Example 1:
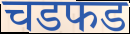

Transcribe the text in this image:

चडफड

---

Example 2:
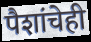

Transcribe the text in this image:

पैशांचेही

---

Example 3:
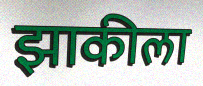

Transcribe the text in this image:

झाकीला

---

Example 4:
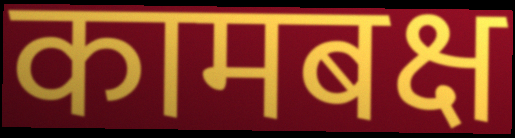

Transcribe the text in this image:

कामबक्ष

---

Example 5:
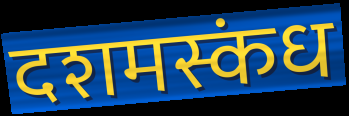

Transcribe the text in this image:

दशमस्कंध